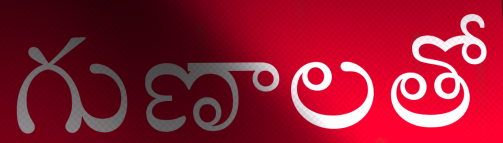
గుణాలతో